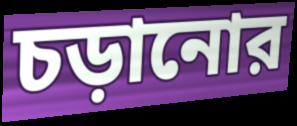
চড়ানোর